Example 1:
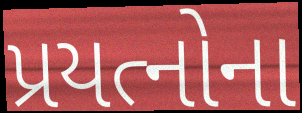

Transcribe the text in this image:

પ્રયત્નોના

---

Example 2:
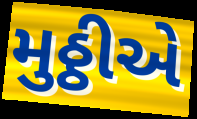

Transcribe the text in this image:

મુઠ્ઠીએ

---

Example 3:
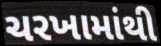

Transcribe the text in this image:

ચરખામાંથી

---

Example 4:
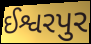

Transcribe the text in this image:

ઈશ્વરપુર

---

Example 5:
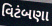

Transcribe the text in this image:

વિટંબણા